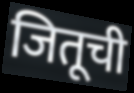
जितूची